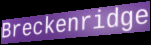
Breckenridge